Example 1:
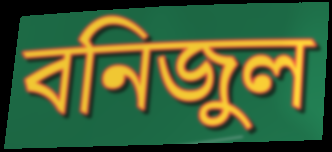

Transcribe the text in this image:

বনিজুল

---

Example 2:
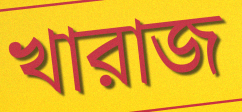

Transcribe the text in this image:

খারাজ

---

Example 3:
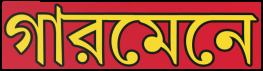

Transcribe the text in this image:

গারমেনে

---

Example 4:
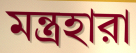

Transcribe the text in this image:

মন্ত্রহারা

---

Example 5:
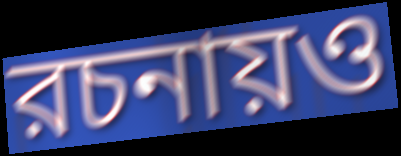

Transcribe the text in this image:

রচনায়ও